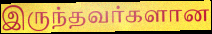
இருந்தவர்களான